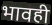
भावही